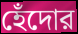
হেঁদোর